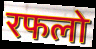
रफलो